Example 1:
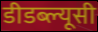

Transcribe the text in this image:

डीडब्ल्यूसी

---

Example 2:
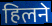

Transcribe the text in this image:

हिलने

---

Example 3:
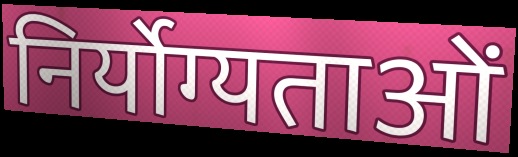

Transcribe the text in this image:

निर्योग्यताओं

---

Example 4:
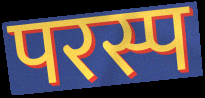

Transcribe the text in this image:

परस्प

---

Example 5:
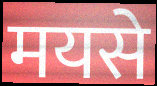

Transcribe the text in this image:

मयसे